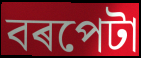
বৰপেটা